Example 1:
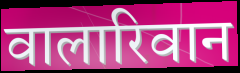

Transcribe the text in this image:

वालारिवान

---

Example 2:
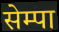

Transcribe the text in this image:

सेम्पा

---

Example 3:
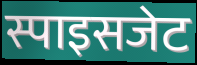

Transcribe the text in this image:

स्‍पाइसजेट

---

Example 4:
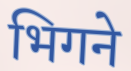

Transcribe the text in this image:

भिगने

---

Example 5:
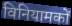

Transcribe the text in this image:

विनियामकों